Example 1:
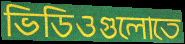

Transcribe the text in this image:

ভিডিওগুলোতে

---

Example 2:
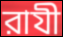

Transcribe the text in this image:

রাযী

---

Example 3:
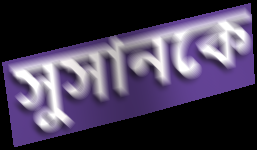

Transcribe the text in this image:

সুসানকে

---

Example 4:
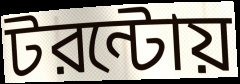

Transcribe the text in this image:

টরন্টোয়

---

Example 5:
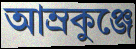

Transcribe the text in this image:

আম্রকুঞ্জে